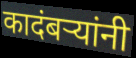
कादंबऱ्यांनी